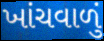
ખાંચવાળું